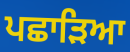
ਪਛਾੜਿਆ